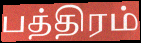
பத்திரம்